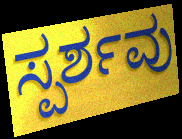
ಸ್ಪರ್ಶವು